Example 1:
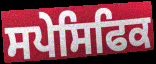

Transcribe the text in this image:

ਸਪੇਸਿਫਿਕ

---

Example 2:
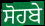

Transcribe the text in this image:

ਸੋਹਬੇ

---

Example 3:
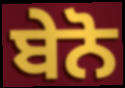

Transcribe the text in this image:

ਬੇਨੋ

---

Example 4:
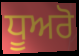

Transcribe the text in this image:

ਧੂਅਰੋ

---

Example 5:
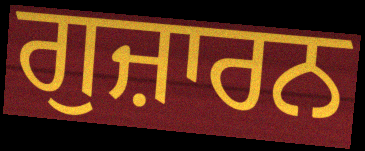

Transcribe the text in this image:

ਗੁਜ਼ਾਰਨ